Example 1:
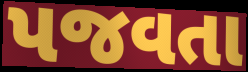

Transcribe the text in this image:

પજવતા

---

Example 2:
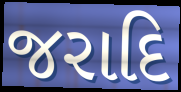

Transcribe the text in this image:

જરાદિ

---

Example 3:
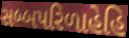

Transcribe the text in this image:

સબ્બપરિળાહેહિ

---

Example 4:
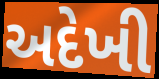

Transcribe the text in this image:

અદેખી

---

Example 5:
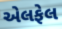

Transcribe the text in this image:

એલફેલ